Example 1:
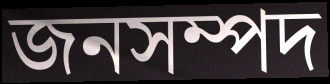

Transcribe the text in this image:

জনসম্পদ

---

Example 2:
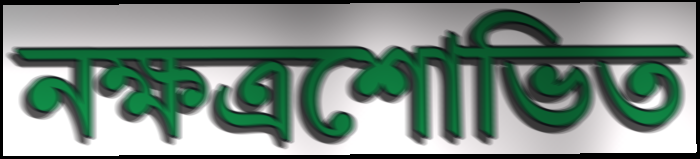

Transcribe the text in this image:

নক্ষত্রশোভিত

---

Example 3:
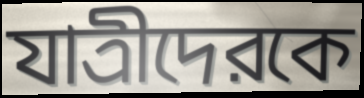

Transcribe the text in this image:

যাত্রীদেরকে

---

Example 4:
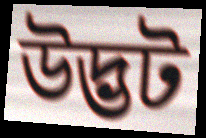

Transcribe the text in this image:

উদ্ভট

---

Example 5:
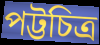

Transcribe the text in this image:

পট্টচিত্র